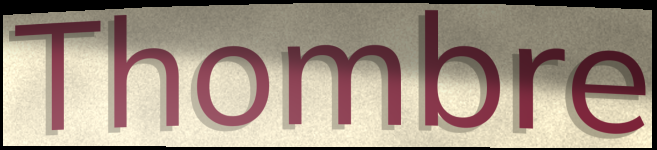
Thombre